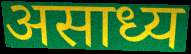
असाध्य